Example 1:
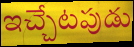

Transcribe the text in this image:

ఇచ్చేటపుడు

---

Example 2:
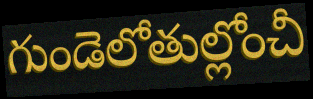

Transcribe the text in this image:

గుండెలోతుల్లోంచీ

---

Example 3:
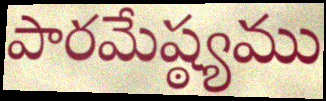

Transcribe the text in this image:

పారమేష్ఠ్యము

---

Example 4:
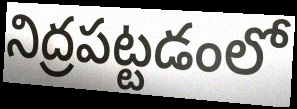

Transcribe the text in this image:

నిద్రపట్టడంలో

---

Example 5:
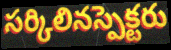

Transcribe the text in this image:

సర్కిలినస్పెక్టరు